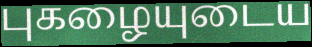
புகழையுடைய